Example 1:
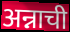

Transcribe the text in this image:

अन्नाची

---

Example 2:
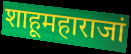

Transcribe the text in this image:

शाहूमहाराजां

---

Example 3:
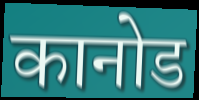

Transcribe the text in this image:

कानोड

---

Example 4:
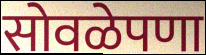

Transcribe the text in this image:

सोवळेपणा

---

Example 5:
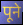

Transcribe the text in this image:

पूने